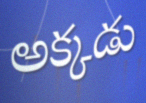
అక్కడు